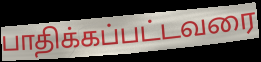
பாதிக்கப்பட்டவரை